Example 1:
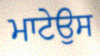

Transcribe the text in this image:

ਮਾਟੇਉਸ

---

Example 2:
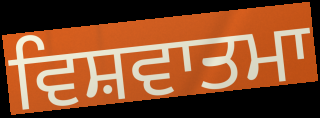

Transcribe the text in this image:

ਵਿਸ਼ਵਾਤਮਾ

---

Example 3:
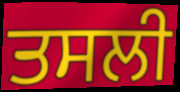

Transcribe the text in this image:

ਤਸਲੀ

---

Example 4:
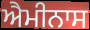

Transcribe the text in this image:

ਐਮੀਨਾਸ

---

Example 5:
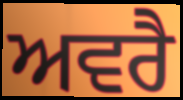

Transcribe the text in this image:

ਅਵਰੈ